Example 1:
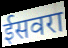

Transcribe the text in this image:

ईसवरा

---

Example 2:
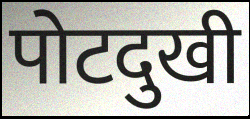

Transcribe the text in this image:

पोटदुखी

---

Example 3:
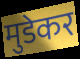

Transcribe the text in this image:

मुडेकर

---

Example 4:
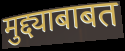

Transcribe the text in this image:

मुद्द्याबाबत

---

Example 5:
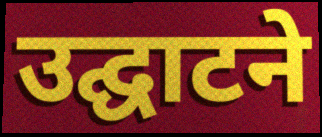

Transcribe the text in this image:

उद्घाटने